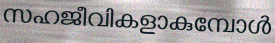
സഹജീവികളാകുമ്പോൾ